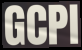
GCPI